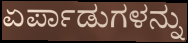
ಏರ್ಪಾಡುಗಳನ್ನು